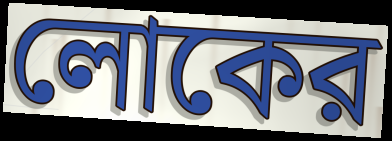
লোকের